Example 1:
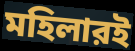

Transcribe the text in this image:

মহিলারই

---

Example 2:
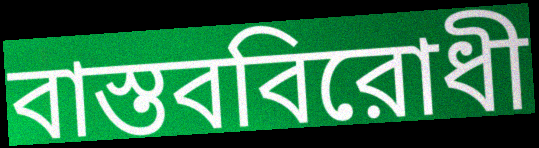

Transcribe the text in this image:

বাস্তববিরোধী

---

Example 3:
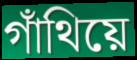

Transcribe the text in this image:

গাঁথিয়ে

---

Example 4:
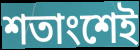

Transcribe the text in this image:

শতাংশেই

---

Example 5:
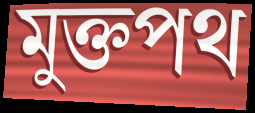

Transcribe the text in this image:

মুক্তপথ